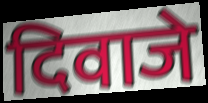
दिवाजे